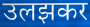
उलझकर